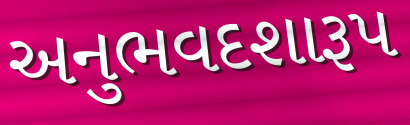
અનુભવદશારૂપ